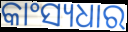
କାଂସ୍ୟଧାର